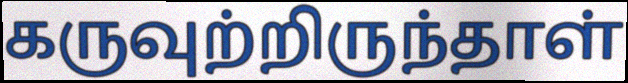
கருவுற்றிருந்தாள்